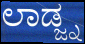
ಲಾಡ್ಜ್ನ